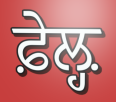
ਫ਼ੇਲ਼੍ਹ